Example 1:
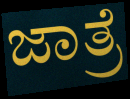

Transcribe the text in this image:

ಜಾತ್ರೆ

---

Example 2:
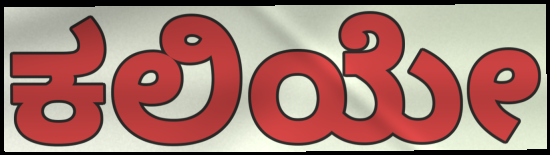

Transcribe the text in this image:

ಕಲಿಯೇ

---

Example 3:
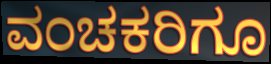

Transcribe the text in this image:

ವಂಚಕರಿಗೂ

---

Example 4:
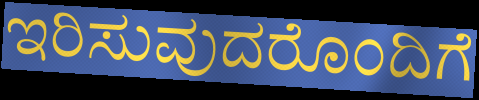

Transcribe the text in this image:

ಇರಿಸುವುದರೊಂದಿಗೆ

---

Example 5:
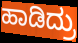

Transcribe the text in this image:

ಹಾಡಿದ್ರು